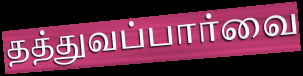
தத்துவப்பார்வை